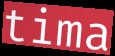
tima